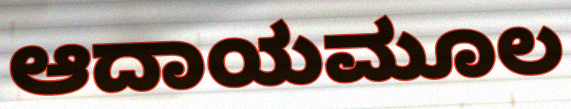
ಆದಾಯಮೂಲ